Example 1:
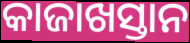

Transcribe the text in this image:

କାଜାଖସ୍ତାନ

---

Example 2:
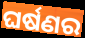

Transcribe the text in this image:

ଘର୍ଷଣର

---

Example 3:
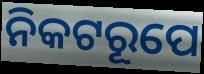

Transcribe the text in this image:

ନିକଟରୂପେ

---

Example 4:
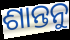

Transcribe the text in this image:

ଶାନ୍ତନୁ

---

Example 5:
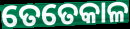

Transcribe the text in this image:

ତେତେକାଳ